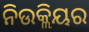
ନିଉକ୍ଲିୟର